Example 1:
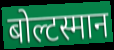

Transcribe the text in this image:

बोल्टस्मान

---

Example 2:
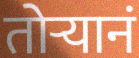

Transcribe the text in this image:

तोऱ्यानं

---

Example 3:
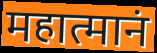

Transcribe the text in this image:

महात्मानं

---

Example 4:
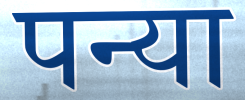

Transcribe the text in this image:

पन्या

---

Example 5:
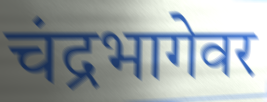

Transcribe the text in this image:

चंद्रभागेवर